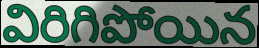
విరిగిపోయిన